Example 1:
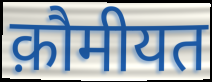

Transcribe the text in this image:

क़ौमीयत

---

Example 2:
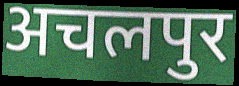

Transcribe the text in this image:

अचलपुर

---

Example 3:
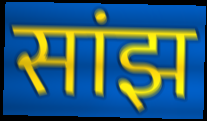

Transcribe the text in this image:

सांझ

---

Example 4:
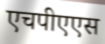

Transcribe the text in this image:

एचपीएएस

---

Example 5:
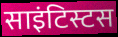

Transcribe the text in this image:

साइंटिस्टस